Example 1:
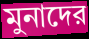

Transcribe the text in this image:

মুনাদের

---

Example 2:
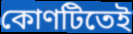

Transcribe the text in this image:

কোণটিতেই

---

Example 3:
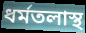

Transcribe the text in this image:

ধর্মতলাস্থ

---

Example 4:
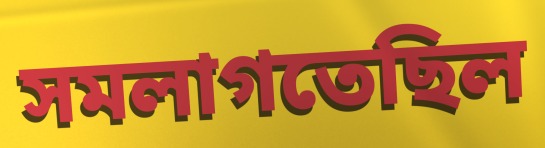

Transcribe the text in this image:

সমলাগতেছিল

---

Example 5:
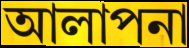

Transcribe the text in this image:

আলাপনা